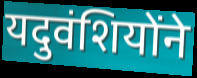
यदुवंशियोंने